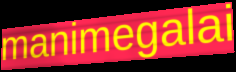
manimegalai